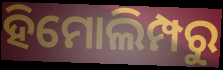
ହିମୋଲିମ୍ପରୁ